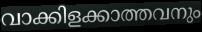
വാക്കിളക്കാത്തവനും